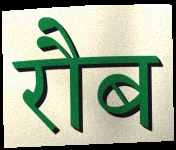
रौब